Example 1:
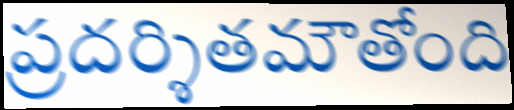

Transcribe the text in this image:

ప్రదర్శితమౌతోంది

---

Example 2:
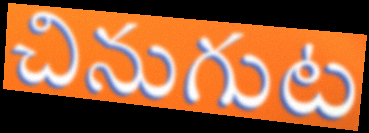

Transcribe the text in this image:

చినుగుట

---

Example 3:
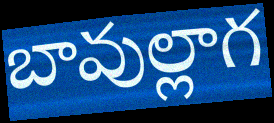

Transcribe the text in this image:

బావుల్లాగ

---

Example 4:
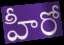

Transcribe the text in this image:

హీరో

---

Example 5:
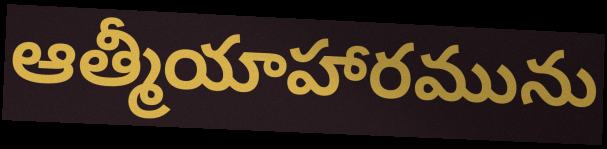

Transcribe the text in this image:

ఆత్మీయాహారమును